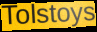
Tolstoys